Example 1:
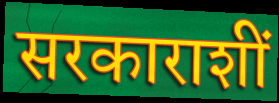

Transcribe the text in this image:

सरकाराशीं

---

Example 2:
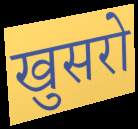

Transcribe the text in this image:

खुसरो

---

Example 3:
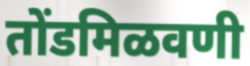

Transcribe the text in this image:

तोंडमिळवणी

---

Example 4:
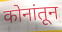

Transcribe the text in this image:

कोनांतून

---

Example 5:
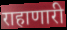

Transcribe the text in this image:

राहाणारी